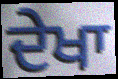
ਦੇਖਾ